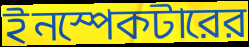
ইনস্পেকটারের